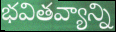
భవితవ్యాన్ని